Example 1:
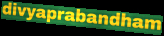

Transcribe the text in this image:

divyaprabandham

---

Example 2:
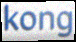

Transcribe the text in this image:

kong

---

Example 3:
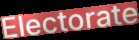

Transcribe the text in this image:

Electorate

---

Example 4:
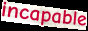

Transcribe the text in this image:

incapable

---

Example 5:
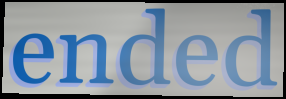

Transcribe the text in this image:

ended